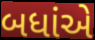
બધાંએ